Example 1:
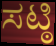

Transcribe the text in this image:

ಸಟ್ಠಿ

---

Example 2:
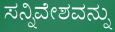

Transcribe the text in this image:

ಸನ್ನಿವೇಶವನ್ನು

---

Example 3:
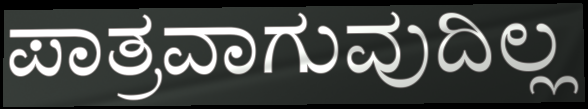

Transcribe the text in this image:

ಪಾತ್ರವಾಗುವುದಿಲ್ಲ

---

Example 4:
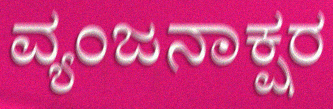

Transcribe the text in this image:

ವ್ಯಂಜನಾಕ್ಷರ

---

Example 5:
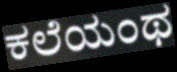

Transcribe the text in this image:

ಕಲೆಯಂಥ